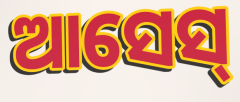
ଆସେସ୍